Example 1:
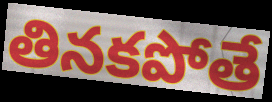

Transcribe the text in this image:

తినకపోతే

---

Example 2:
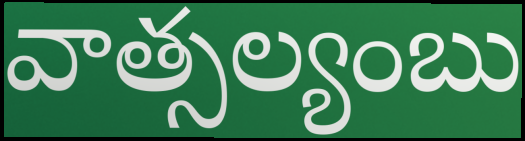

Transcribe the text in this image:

వాత్సల్యంబు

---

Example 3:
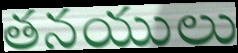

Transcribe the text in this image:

తనయులు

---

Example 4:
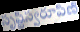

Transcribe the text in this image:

సృష్టిస్వరూపిణి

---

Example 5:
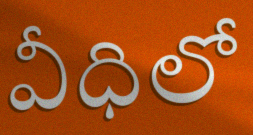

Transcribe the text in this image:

వీధిలో